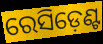
ରେସିଡ଼େଣ୍ଟ